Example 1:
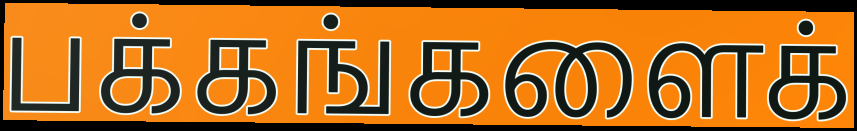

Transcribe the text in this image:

பக்கங்களைக்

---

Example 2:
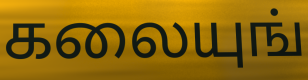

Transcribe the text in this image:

கலையுங்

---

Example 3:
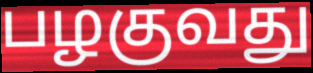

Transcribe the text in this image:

பழகுவது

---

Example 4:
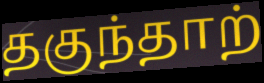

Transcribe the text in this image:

தகுந்தாற்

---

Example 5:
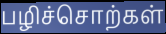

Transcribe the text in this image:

பழிச்சொற்கள்